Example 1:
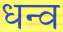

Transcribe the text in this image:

धन्व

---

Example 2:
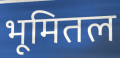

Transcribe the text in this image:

भूमितल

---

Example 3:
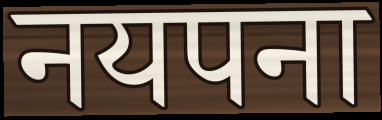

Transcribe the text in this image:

नयपना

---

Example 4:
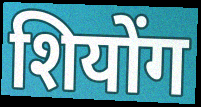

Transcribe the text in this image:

शियोंग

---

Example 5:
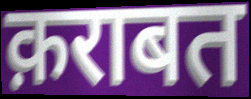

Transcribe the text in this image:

क़राबत